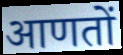
आणतों